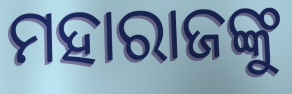
ମହାରାଜଙ୍କୁ